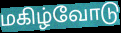
மகிழ்வோடு